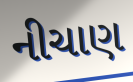
નીચાણ